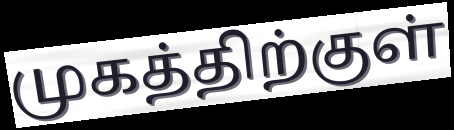
முகத்திற்குள்